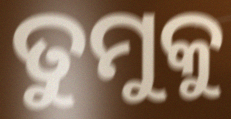
ତୁମୁକୁ